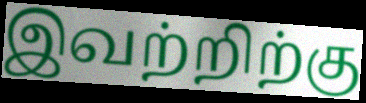
இவற்றிற்கு